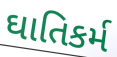
ઘાતિકર્મ